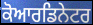
ਕੋਆਰਡਿਨੇਟਰ